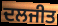
ਦਲਜੀਤ